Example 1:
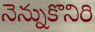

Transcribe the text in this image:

నెన్నుకొనిరి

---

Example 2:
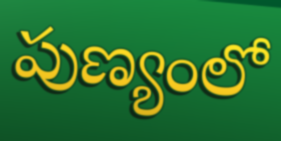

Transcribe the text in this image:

పుణ్యంలో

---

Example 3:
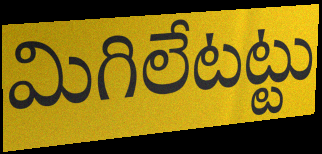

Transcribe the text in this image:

మిగిలేటట్టు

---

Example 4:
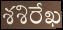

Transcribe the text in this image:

శశిరేఖ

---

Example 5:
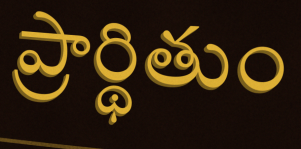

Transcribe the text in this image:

ప్రార్థితుం